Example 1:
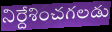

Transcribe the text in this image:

నిర్దేశించగలడు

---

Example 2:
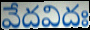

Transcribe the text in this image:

వేదవిదః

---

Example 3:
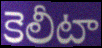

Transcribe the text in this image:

కెలీటా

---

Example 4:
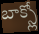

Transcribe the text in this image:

బాక్స్లో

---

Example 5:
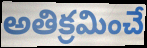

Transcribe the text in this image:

అతిక్రమించే